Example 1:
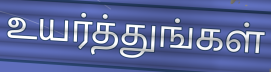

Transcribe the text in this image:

உயர்த்துங்கள்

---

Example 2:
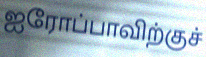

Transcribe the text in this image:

ஐரோப்பாவிற்குச்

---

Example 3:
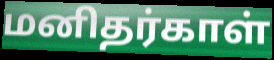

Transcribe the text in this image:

மனிதர்காள்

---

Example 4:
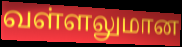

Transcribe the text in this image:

வள்ளலுமான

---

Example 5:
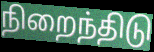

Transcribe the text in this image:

நிறைந்திடு